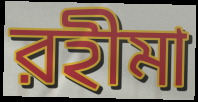
রহীমা